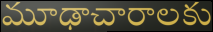
మూఢాచారాలకు